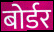
बोर्डर